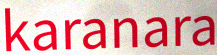
karanara